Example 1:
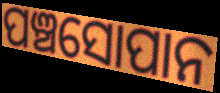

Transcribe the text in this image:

ପଞ୍ଚସୋପାନ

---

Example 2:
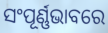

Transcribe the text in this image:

ସଂପୂର୍ଣ୍ଣଭାବରେ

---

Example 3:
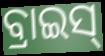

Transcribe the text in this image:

ବ୍ରାଇସ୍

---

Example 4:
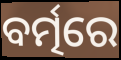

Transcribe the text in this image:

ବର୍ତ୍ମରେ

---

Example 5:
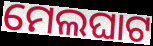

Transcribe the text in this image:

ମେଲଘାଟ